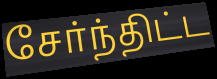
சேர்ந்திட்ட